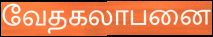
வேதகலாபனை